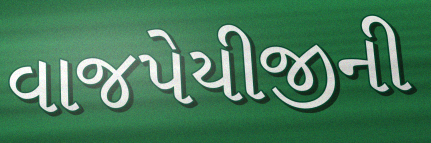
વાજપેયીજીની